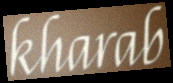
kharab